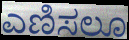
ಎಣಿಸಲೂ